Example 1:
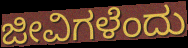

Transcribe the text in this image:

ಜೀವಿಗಳೆಂದು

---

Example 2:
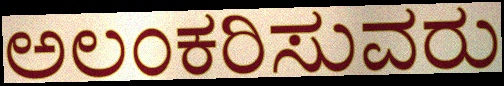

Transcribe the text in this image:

ಅಲಂಕರಿಸುವರು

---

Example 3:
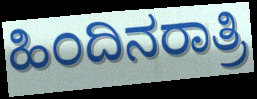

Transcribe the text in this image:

ಹಿಂದಿನರಾತ್ರಿ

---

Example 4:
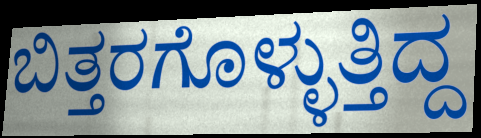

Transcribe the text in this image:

ಬಿತ್ತರಗೊಳ್ಳುತ್ತಿದ್ದ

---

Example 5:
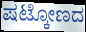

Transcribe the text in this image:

ಷಟ್ಕೋಣದ